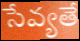
సేవ్యతే